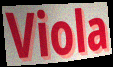
Viola